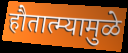
हौतात्म्यामुळे